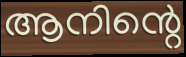
ആനിന്റെ